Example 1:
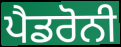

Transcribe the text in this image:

ਪੈਡਰੋਨੀ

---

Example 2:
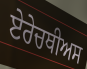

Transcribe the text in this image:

ਏਰੇਚਥੀਅਸ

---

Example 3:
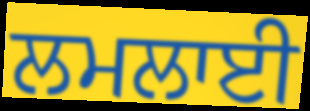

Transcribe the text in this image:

ਲਮਲਾਈ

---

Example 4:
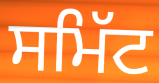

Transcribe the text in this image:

ਸਮਿੱਟ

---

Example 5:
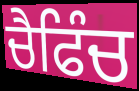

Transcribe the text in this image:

ਚੈਫਿੰਚ